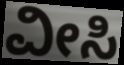
ವೀಸಿ